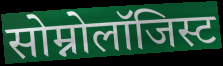
सोम्नोलॉजिस्ट